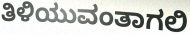
ತಿಳಿಯುವಂತಾಗಲಿ